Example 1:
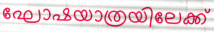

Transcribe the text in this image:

ഘോഷയാത്രയിലേക്ക്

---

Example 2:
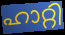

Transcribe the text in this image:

ഹാറ്റി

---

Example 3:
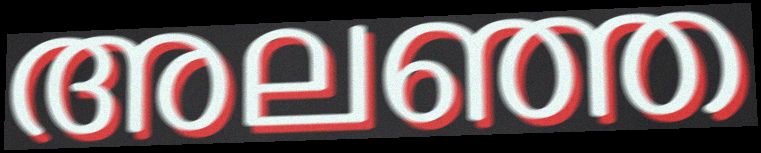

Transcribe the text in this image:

അലഞ്ഞ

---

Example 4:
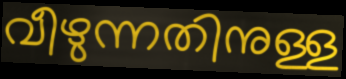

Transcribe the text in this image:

വീഴുന്നതിനുള്ള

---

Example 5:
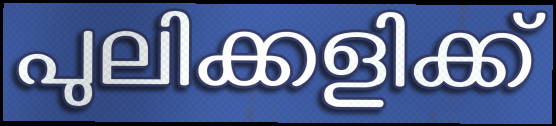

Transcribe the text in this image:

പുലിക്കളിക്ക്